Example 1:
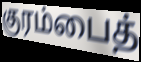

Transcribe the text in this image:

குரம்பைத்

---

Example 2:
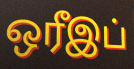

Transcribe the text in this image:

ஒரீஇப்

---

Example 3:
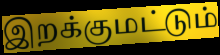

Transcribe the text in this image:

இறக்குமட்டும்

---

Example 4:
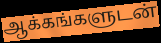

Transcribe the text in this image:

ஆக்கங்களுடன்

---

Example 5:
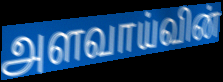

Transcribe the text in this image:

அளவாய்வின்